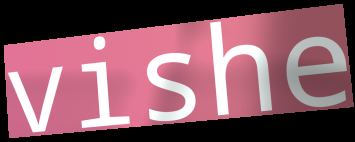
vishe